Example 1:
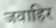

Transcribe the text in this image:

जवाहिर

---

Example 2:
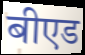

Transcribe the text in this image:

बीएड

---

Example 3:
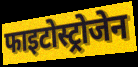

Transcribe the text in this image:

फाइटोस्ट्रोजेन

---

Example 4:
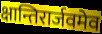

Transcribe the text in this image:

क्षान्तिरार्जवमेव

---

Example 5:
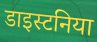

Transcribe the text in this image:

डाइस्टनिया